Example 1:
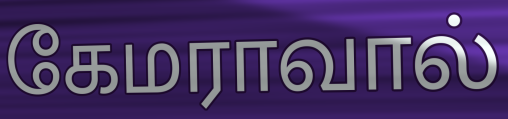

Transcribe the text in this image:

கேமராவால்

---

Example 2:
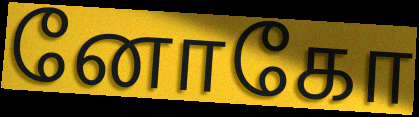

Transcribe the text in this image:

னோகோ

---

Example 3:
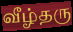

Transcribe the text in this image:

வீழ்தரு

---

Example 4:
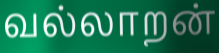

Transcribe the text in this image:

வல்லாறன்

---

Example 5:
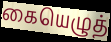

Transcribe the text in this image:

கையெழுத்